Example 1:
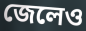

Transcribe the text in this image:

জেলেও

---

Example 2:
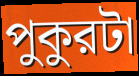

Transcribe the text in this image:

পুকুরটা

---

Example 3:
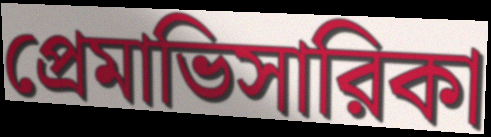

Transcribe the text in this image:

প্রেমাভিসারিকা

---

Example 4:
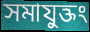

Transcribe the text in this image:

সমাযুক্তং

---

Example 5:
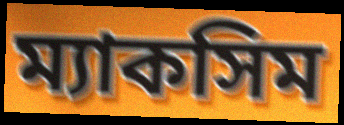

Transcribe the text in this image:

ম্যাকসিম